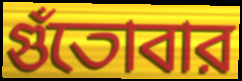
গুঁতোবার